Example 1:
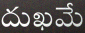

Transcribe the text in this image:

దుఖమే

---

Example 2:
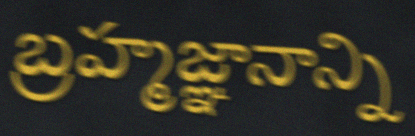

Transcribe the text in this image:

బ్రహ్మజ్ఞానాన్ని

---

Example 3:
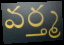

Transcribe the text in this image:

వర్త్మ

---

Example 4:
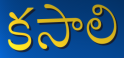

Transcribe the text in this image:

కసాలి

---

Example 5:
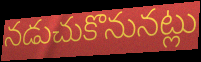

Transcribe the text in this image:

నడుచుకొనునట్లు